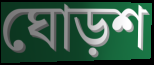
ঘোড়শ